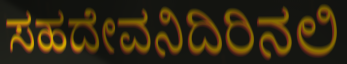
ಸಹದೇವನಿದಿರಿನಲಿ